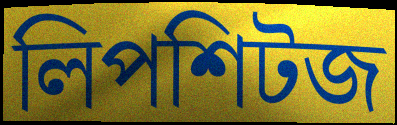
লিপশিটজ